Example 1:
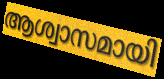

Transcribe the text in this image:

ആശ്വാസമായി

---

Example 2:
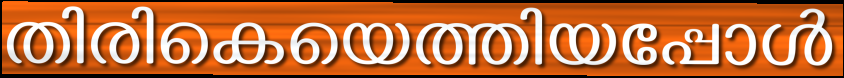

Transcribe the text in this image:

തിരികെയെത്തിയപ്പോൾ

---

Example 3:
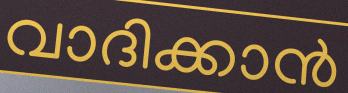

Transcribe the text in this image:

വാദിക്കാൻ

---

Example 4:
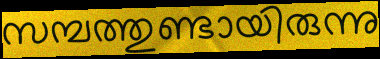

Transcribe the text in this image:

സമ്പത്തുണ്ടായിരുന്നു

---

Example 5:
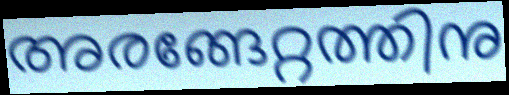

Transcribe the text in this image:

അരങ്ങേറ്റത്തിനു